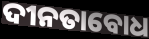
ଦୀନତାବୋଧ